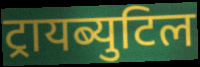
ट्रायब्युटिल